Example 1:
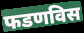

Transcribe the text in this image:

फडणविस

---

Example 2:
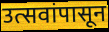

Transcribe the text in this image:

उत्सवांपासून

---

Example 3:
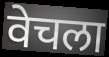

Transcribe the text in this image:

वेचला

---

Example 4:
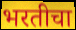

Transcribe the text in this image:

भरतीचा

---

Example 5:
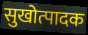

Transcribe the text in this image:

सुखोत्पादक